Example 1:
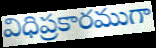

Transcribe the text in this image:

విధిప్రకారముగా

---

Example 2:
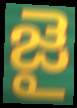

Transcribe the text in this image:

జై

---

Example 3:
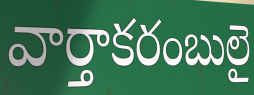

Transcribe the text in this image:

వార్తాకరంబులై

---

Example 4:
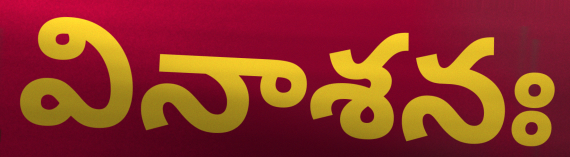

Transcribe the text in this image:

వినాశనః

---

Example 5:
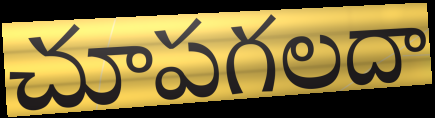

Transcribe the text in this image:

చూపగలదా